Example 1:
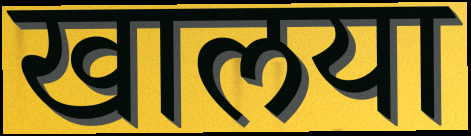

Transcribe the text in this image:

खालया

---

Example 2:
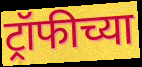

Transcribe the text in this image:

ट्रॉफीच्या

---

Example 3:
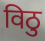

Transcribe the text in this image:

विठु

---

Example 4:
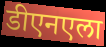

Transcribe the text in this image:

डीएनएला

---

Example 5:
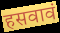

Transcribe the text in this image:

हसवावं